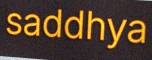
saddhya